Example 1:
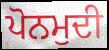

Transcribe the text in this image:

ਪੋਨਮੁਦੀ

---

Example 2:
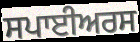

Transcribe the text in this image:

ਸਪਾਈਅਰਸ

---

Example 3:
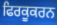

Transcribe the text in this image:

ਫਿਰਕੂਕਰਨ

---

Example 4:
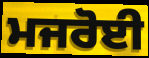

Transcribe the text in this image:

ਮਜਰੋਈ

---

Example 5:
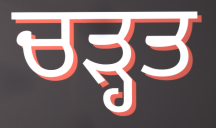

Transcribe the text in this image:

ਚੜ੍ਹਤ